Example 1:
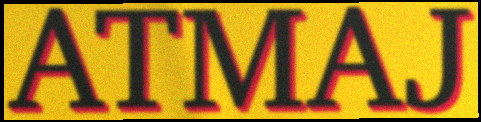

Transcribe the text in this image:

ATMAJ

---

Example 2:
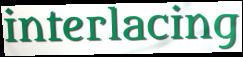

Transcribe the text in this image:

interlacing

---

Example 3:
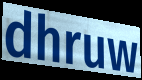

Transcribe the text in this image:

dhruw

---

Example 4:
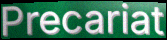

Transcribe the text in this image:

Precariat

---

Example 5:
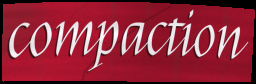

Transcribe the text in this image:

compaction